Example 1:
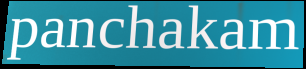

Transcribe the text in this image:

panchakam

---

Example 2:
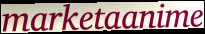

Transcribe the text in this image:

marketaanime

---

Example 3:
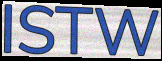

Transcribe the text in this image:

ISTW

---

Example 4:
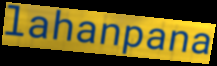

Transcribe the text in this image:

lahanpana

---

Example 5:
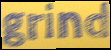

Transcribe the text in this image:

grind